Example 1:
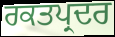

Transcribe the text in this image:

ਰਕਤਪ੍ਰਦਰ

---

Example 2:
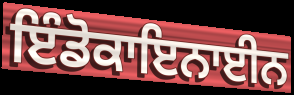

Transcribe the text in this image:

ਇੰਡੋਕਾਇਨਾਈਨ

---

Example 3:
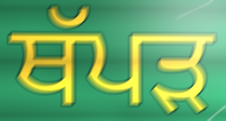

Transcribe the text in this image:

ਥੱਪੜ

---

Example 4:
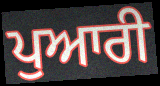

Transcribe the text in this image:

ਪੁਆਰੀ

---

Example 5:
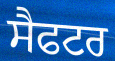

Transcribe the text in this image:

ਸੈਫਟਰ